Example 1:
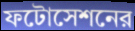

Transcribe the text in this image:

ফটোসেশনের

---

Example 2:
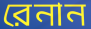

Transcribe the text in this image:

রেনান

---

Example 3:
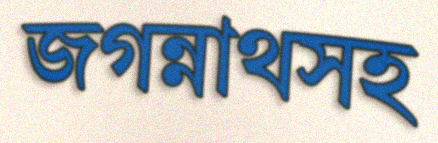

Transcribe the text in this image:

জগন্নাথসহ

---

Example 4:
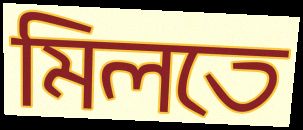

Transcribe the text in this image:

মিলতে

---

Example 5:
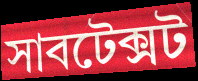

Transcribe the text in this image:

সাবটেক্সট